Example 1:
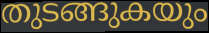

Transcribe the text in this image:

തുടങ്ങുകയും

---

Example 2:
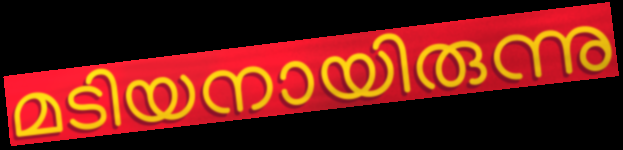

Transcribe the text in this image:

മടിയനായിരുന്നു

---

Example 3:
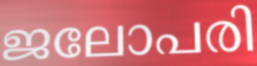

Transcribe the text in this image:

ജലോപരി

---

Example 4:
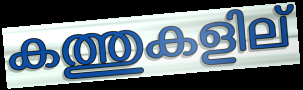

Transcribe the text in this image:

കത്തുകളില്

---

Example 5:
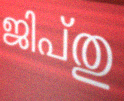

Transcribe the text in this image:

ജിപ്തു